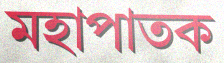
মহাপাতক